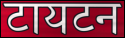
टायटन